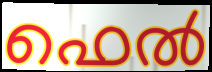
ഫെൽ